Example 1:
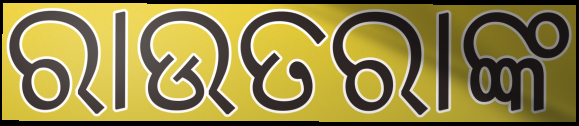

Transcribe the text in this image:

ରାଉତରାଙ୍କ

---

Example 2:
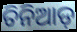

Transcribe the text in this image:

ତିନିଆଡ଼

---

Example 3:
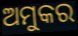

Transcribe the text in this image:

ଅମୁକର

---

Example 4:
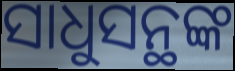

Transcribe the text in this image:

ସାଧୁସନ୍ଥଙ୍କ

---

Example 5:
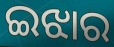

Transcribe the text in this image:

ଇଝାର